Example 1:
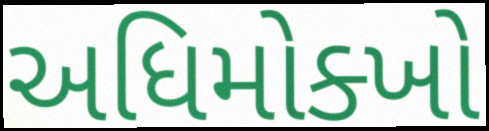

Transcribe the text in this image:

અધિમોક્ખો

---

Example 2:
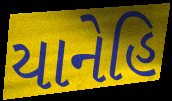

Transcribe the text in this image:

યાનેહિ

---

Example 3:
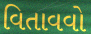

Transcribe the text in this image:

વિતાવવો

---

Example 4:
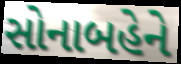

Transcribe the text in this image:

સોનાબહેને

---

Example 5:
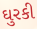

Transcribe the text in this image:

ઘુરકી